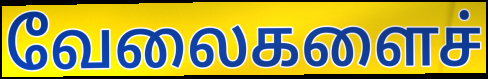
வேலைகளைச்